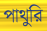
পাথুরি